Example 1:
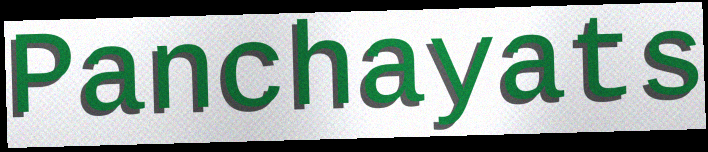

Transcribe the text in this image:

Panchayats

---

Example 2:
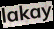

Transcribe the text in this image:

lakay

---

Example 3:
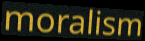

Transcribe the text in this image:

moralism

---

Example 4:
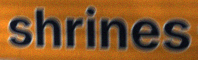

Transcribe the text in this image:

shrines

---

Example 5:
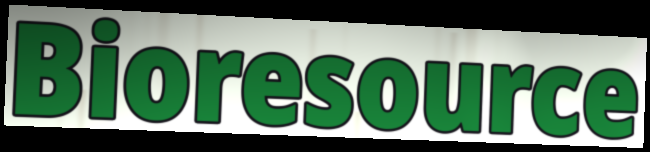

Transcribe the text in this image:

Bioresource